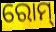
ରୋମ୍